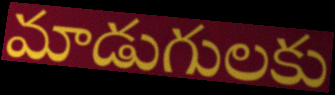
మాడుగులకు